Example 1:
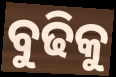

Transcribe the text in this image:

ବୁଢିକୁ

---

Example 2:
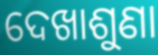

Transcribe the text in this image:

ଦେଖାଶୁଣା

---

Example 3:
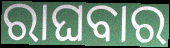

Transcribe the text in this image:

ରାଘବାର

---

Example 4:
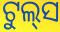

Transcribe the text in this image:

ଟୁଲ୍‌ସ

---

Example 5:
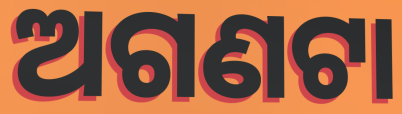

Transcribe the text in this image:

ଅଗଣଟା